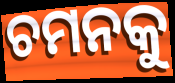
ଚମନକୁ